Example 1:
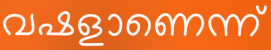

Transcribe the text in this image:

വഷളാണെന്ന്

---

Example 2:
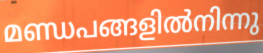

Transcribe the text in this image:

മണ്ഡപങ്ങളിൽനിന്നു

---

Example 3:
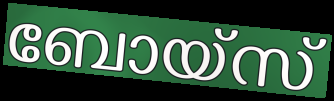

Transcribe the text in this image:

ബോയ്സ്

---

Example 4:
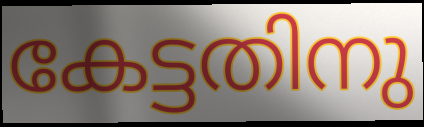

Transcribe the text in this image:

കേട്ടതിനു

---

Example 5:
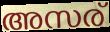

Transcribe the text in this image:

അസര്